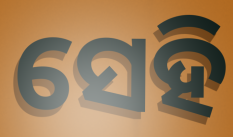
ସେହି